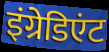
इंग्रेडिएंट